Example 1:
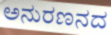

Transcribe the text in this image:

ಅನುರಣನದ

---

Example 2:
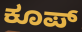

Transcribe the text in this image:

ಕೂಪ್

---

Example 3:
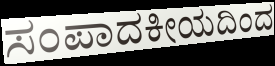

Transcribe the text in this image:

ಸಂಪಾದಕೀಯದಿಂದ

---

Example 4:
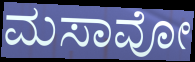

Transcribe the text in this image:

ಮಸಾವೋ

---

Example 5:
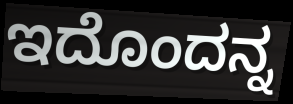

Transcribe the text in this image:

ಇದೊಂದನ್ನ